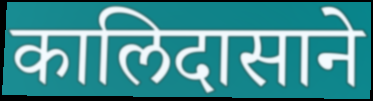
कालिदासाने